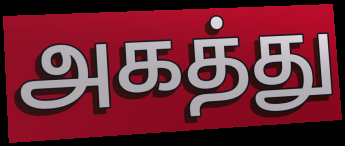
அகத்து